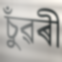
চুঁৱৰী